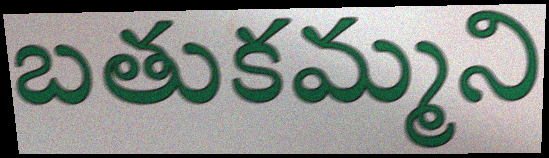
బతుకమ్మని